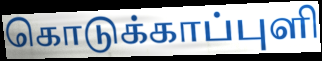
கொடுக்காப்புளி